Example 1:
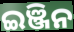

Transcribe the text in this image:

ଇଞ୍ଜିନ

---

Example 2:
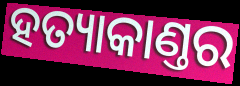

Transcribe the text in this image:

ହତ୍ୟାକାଣ୍ତର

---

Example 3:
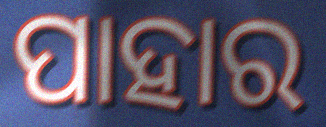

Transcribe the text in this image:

ପାହାର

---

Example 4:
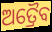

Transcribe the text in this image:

ଅତ୍ରୈବ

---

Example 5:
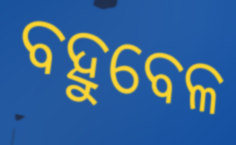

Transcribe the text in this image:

ବହୁବେଳ